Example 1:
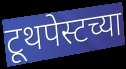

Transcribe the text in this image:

टूथपेस्टच्या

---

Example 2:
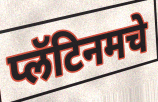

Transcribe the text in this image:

प्लॅटिनमचे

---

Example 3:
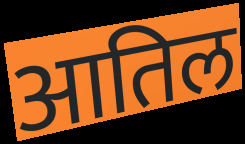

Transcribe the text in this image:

आतिल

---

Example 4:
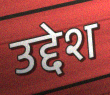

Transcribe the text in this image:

उद्देश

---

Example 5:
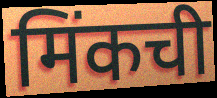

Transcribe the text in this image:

मिंकची